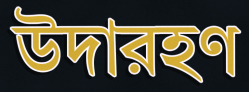
উদারহণ